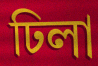
ঢিলা